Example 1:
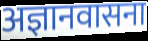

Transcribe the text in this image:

अज्ञानवासना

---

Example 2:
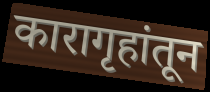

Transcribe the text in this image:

कारागृहांतून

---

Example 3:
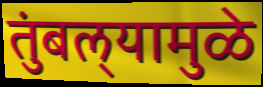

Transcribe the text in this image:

तुंबल्यामुळे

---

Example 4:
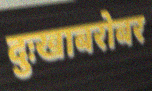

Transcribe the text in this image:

दुःखाबरोबर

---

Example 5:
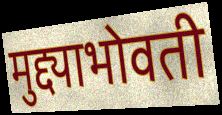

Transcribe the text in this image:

मुद्द्याभोवती